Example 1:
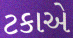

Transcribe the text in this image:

ટકાએ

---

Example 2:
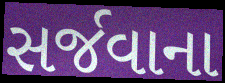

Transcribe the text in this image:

સર્જવાના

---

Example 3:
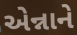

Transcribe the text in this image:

એન્નાને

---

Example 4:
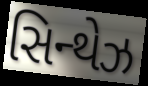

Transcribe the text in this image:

સિન્થેઝ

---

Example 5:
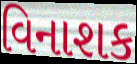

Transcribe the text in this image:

વિનાશક